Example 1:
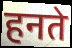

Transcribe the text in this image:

हनते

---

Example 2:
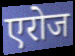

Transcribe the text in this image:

एरोज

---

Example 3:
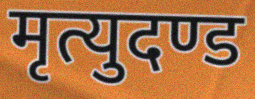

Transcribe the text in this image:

मृत्युदण्ड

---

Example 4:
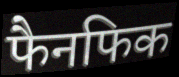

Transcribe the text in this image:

फैनफिक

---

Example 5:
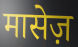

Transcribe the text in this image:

मासेज़